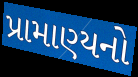
પ્રામાણ્યનો